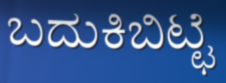
ಬದುಕಿಬಿಟ್ಟೆ